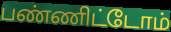
பண்ணிட்டோம்